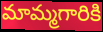
మామ్మగారికి